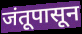
जंतूपासून